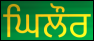
ਘਿਲੌਰ